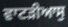
ਵਾਟੜੀਆਸੁ